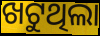
ଖଟୁଥିଲା